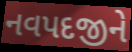
નવપદજીને